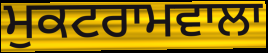
ਮੁਕਟਰਾਮਵਾਲਾ